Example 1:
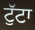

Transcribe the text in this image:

ਟੁੱਟਾ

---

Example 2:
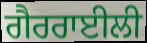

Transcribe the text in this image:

ਗੈਰਰਾਈਲੀ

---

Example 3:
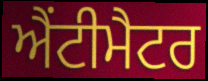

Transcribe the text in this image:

ਐਂਟੀਮੈਟਰ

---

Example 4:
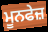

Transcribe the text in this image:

ਮੂਨਫੇਜ਼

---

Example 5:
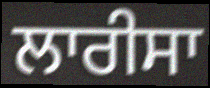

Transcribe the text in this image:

ਲਾਰੀਸਾ